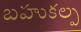
బహుకల్ప